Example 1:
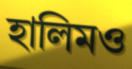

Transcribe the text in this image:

হালিমও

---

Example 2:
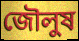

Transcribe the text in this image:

জৌলুষ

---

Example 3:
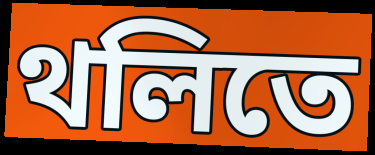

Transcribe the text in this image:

থলিতে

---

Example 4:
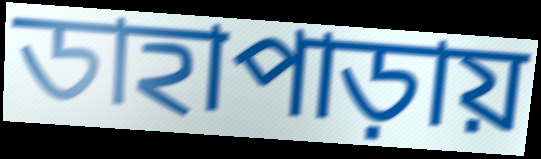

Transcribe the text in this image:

ডাহাপাড়ায়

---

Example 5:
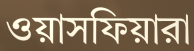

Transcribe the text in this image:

ওয়াসফিয়ারা